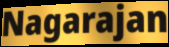
Nagarajan